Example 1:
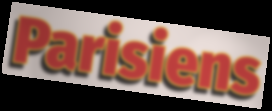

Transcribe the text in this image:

Parisiens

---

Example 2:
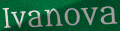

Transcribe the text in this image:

Ivanova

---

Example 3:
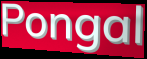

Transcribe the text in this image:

Pongal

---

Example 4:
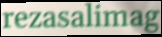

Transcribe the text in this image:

rezasalimag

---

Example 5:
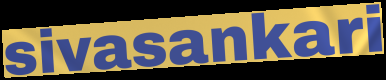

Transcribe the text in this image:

sivasankari